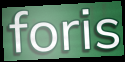
foris